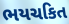
ભયચકિત